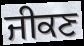
ਜੀਕਣ